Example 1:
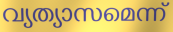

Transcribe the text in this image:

വ്യത്യാസമെന്ന്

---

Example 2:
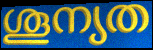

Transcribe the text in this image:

ശൂന്യത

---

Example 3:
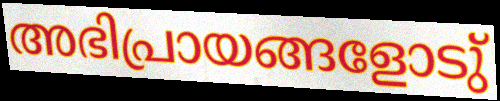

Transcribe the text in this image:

അഭിപ്രായങ്ങളോടു്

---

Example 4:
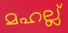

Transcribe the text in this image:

മഹല്ല്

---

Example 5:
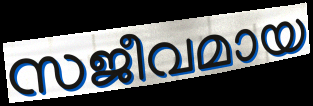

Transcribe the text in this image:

സജീവമായ